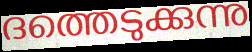
ദത്തെടുക്കുന്നു